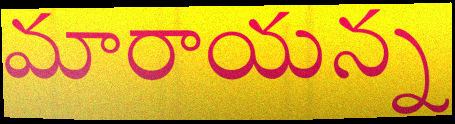
మారాయన్న